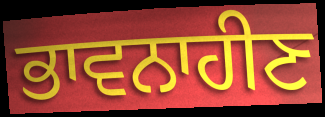
ਭਾਵਨਾਹੀਣ